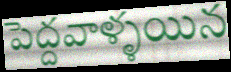
పెద్దవాళ్ళయిన